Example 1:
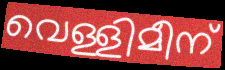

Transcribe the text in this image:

വെള്ളിമീന്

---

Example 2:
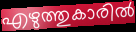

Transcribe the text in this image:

എഴുത്തുകാരിൽ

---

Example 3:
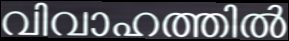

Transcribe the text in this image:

വിവാഹത്തിൽ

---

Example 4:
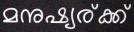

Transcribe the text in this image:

മനുഷ്യര്ക്ക്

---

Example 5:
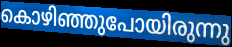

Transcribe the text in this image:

കൊഴിഞ്ഞുപോയിരുന്നു